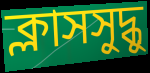
ক্লাসসুদ্ধু